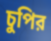
চুপির